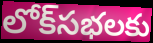
లోక్‌సభలకు